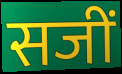
सजीं